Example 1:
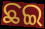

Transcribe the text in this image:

ଛଇ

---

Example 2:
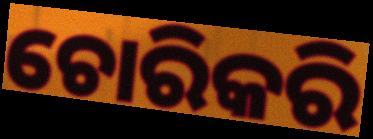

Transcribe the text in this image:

ଚୋରିକରି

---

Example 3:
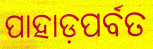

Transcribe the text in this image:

ପାହାଡ଼ପର୍ବତ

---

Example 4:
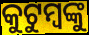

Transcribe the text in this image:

କୁଟୁମ୍ବଙ୍କୁ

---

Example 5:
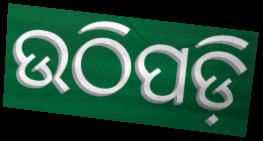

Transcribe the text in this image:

ଉଠିପଡ଼ି